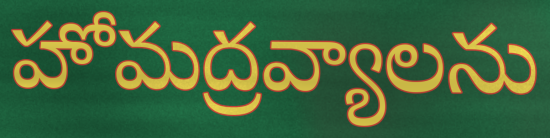
హోమద్రవ్యాలను